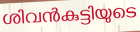
ശിവൻകുട്ടിയുടെ